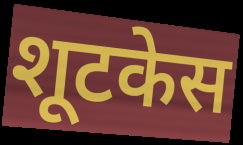
शूटकेस